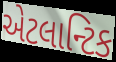
એટલાન્ટિક